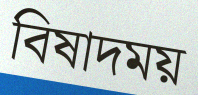
বিষাদময়